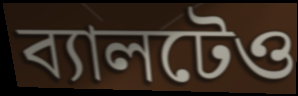
ব্যালটেও